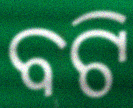
ବଟି